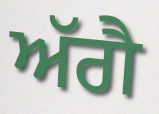
ਅੱਗੈ